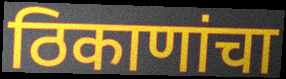
ठिकाणांचा